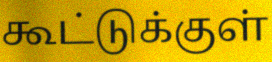
கூட்டுக்குள்